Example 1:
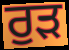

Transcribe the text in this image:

ਰੁੜ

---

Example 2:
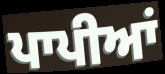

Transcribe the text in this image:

ਪਾਪੀਆਂ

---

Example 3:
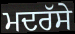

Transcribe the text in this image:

ਮਦਰੱਸੇ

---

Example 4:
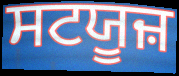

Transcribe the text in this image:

ਸਟਯੂਜ਼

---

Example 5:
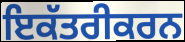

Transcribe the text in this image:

ਇਕੱਤਰੀਕਰਨ